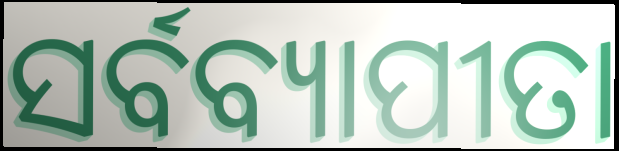
ସର୍ବବ୍ୟାପୀତା